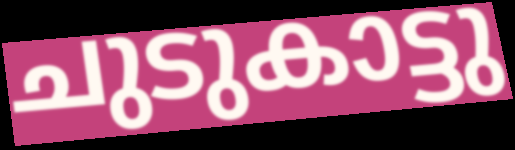
ചുടുകാട്ടു